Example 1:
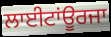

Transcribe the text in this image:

ਲਾਈਟਾਂਊਰਜਾ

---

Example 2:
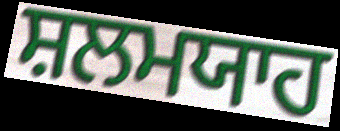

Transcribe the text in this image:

ਸ਼ਲਮਯਾਹ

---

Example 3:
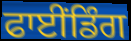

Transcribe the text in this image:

ਫਾਈਂਡਿੰਗ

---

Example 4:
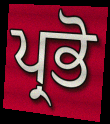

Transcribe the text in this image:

ਪ੍ਰਭੋ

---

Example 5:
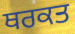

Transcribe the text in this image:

ਥਰਕਤ